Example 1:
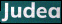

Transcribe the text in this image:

Judea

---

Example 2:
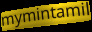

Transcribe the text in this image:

mymintamil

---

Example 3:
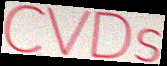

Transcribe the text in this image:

CVDs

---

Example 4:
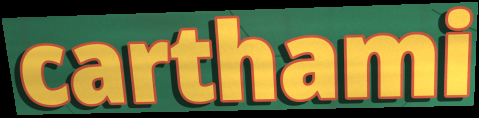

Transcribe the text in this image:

carthami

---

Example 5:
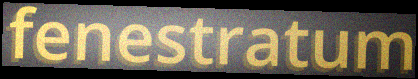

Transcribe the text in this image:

fenestratum